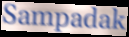
Sampadak